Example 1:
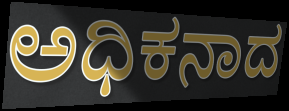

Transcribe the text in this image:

ಅಧಿಕನಾದ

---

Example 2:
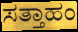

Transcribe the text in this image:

ಸತ್ತಾಹಂ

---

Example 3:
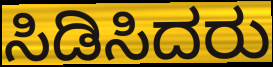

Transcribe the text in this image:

ಸಿಡಿಸಿದರು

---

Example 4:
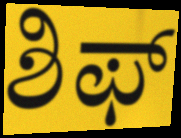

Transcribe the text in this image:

ಶಿಫ್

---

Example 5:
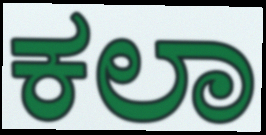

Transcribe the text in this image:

ಕಲಾ